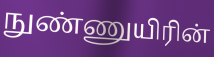
நுண்ணுயிரின்